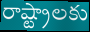
రాష్ట్రాలకు